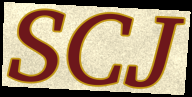
SCJ